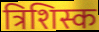
त्रिशिस्क